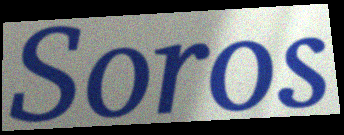
Soros